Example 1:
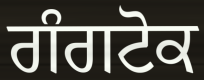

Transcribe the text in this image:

ਗੰਗਟੋਕ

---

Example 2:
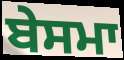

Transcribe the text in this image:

ਬੇਸਮਾ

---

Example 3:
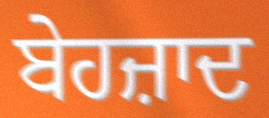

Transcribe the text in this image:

ਬੇਹਜ਼ਾਦ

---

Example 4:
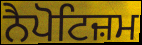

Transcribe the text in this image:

ਨੈਪੋਟਿਜ਼ਮ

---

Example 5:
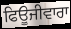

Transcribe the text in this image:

ਫਿਊਜੀਵਾਰਾ